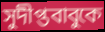
সুদীপ্তবাবুকে